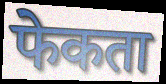
फेकता